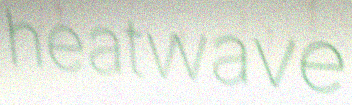
heatwave